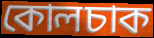
কোলচাক